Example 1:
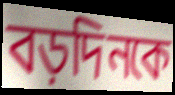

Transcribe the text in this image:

বড়দিনকে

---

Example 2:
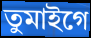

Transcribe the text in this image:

তুমাইগে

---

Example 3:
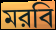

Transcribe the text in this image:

মরবি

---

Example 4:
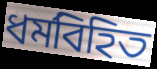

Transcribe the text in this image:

ধর্মবিহিত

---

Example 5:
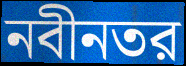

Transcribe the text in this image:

নবীনতর